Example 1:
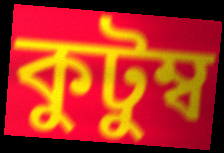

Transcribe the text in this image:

কুটুম্ব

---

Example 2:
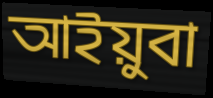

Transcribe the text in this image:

আইয়ুবা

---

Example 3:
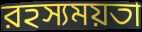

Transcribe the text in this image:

রহস্যময়তা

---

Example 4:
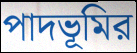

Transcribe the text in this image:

পাদভূমির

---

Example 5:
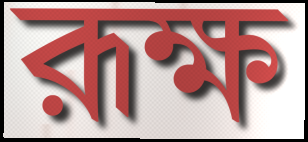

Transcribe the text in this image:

রূক্ষ